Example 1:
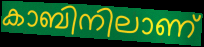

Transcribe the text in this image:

കാബിനിലാണ്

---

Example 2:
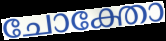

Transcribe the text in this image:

ചോക്തോ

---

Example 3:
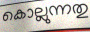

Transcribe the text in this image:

കൊല്ലുന്നതു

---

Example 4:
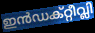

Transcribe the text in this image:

ഇൻഡക്റ്റീവ്ലി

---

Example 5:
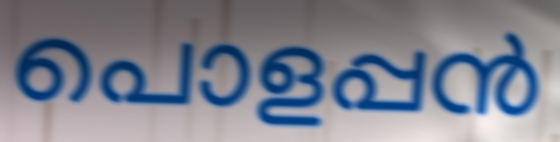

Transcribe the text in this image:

പൊളപ്പൻ